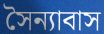
সৈন্যাবাস